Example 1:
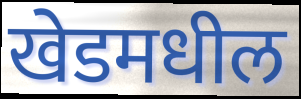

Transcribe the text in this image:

खेडमधील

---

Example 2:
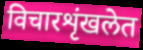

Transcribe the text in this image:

विचारशृंखलेत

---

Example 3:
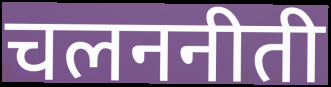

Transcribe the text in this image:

चलननीती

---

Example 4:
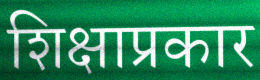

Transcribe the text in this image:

शिक्षाप्रकार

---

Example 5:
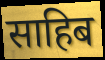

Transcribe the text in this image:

साहिब